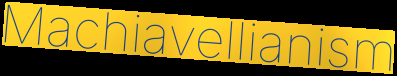
Machiavellianism